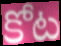
కోట